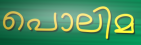
പൊലിമ